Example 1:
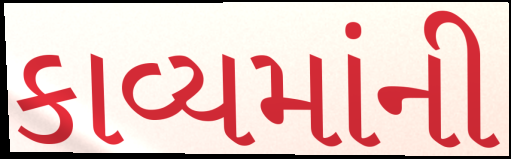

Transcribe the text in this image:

કાવ્યમાંની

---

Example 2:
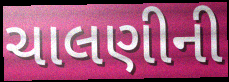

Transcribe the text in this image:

ચાલણીની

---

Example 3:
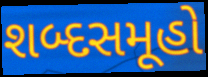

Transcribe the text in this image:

શબ્દસમૂહો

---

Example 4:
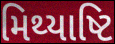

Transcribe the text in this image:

મિથ્યાષ્ટિ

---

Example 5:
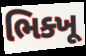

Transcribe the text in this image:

ભિક્ખૂ